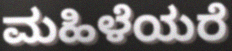
ಮಹಿಳೆಯರೆ